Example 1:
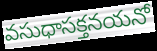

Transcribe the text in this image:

వసుధాసక్తనయనో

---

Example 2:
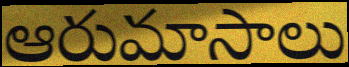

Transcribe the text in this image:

ఆరుమాసాలు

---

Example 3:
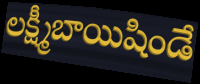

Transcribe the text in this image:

లక్ష్మీబాయిషిండే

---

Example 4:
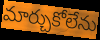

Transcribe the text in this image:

మార్చుకోలేను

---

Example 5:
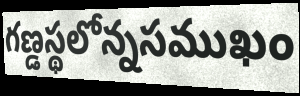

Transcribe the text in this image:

గణ్డస్థలోన్నసముఖం